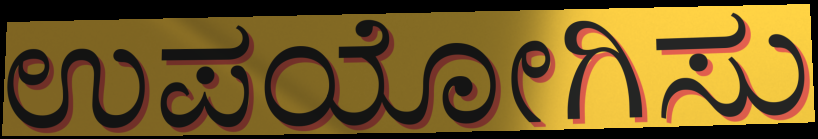
ಉಪಯೋಗಿಸು